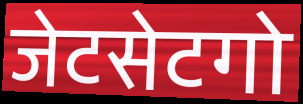
जेटसेटगो